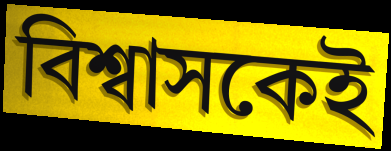
বিশ্বাসকেই